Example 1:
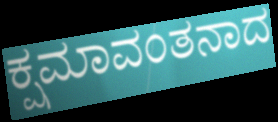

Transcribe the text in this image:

ಕ್ಷಮಾವಂತನಾದ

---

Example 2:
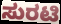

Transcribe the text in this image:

ಸುರಟಿ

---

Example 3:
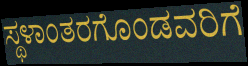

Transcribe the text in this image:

ಸ್ಥಳಾಂತರಗೊಂಡವರಿಗೆ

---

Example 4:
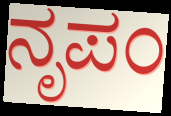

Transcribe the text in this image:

ನೃಪಂ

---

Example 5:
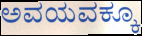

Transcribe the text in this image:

ಅವಯವಕ್ಕೂ